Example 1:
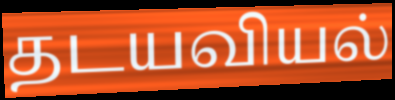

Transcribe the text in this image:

தடயவியல்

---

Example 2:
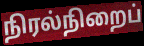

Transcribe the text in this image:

நிரல்நிறைப்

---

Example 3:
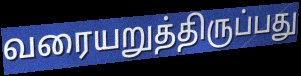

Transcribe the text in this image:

வரையறுத்திருப்பது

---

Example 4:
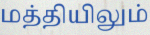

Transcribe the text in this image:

மத்தியிலும்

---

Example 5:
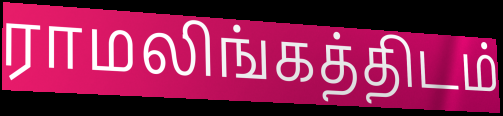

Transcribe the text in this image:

ராமலிங்கத்திடம்